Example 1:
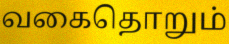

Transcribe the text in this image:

வகைதொறும்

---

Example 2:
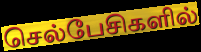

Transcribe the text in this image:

செல்பேசிகளில்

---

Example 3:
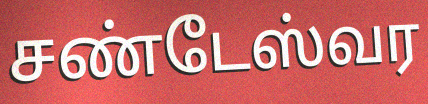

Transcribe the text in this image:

சண்டேஸ்வர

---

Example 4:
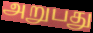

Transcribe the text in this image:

அறுபது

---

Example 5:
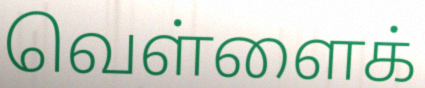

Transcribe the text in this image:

வெள்ளைக்